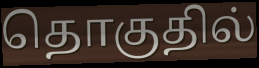
தொகுதில்